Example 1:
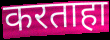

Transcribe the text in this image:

करताहा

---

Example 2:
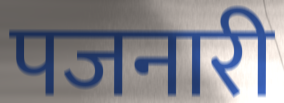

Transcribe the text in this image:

पजनारी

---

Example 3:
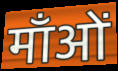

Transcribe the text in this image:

माँओं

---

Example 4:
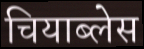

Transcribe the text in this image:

चियाब्लेस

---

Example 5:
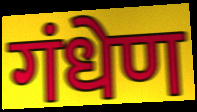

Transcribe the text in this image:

गंधेण